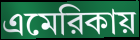
এমেরিকায়